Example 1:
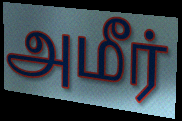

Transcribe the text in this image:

அமீர்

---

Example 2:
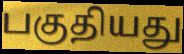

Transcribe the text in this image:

பகுதியது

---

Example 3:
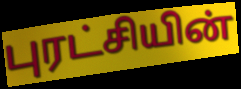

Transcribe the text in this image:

புரட்சியின்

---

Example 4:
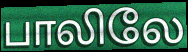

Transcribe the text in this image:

பாலிலே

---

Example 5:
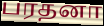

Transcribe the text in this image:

பரதனா